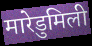
मारेडुमिली